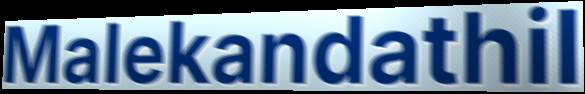
Malekandathil